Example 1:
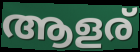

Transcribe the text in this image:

ആളര്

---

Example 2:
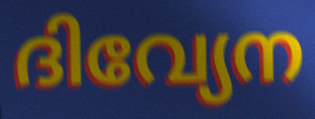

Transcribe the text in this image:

ദിവ്യേന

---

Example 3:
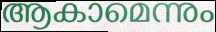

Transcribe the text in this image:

ആകാമെന്നും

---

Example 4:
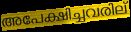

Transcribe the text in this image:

അപേക്ഷിച്ചവരില്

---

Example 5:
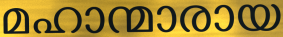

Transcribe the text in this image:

മഹാന്മാരായ